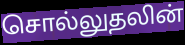
சொல்லுதலின்